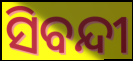
ସିବନ୍ଦୀ